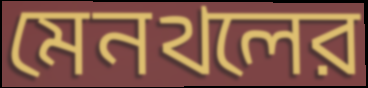
মেনথলের